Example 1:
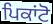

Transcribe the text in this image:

ਪਿਕਾਂਟੋ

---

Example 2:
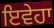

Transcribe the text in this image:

ਇਵੇਹਾ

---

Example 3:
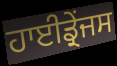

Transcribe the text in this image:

ਹਾਈਡ੍ਰੇਂਜਸ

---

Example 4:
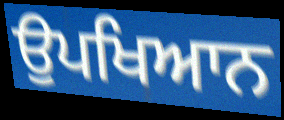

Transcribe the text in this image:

ਉਪਖਿਆਨ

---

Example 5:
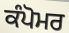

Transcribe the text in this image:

ਕੰਪੋਮਰ